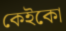
কেইকো